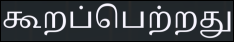
கூறப்பெற்றது